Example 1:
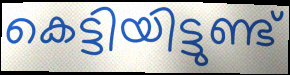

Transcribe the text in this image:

കെട്ടിയിട്ടുണ്ട്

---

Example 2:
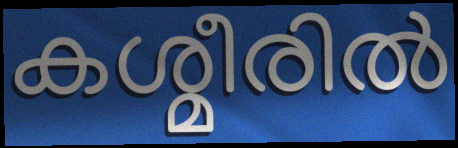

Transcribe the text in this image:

കശ്മീരിൽ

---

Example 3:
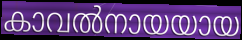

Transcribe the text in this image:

കാവൽനായയായ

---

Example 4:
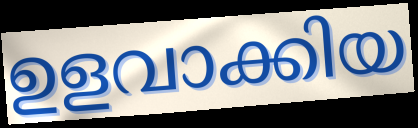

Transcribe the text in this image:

ഉളവാക്കിയ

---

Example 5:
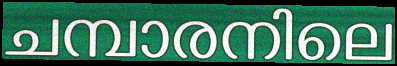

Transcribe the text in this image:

ചമ്പാരനിലെ